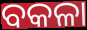
ବକଳା